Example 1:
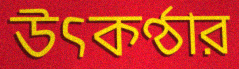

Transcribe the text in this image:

উৎকণ্ঠার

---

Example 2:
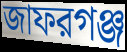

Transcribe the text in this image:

জাফরগঞ্জ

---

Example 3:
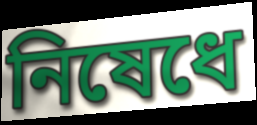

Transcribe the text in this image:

নিষেধে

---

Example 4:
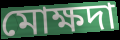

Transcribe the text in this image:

মোক্ষদা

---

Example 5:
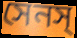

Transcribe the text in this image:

সেনস্